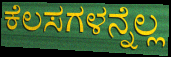
ಕೆಲಸಗಳನ್ನೆಲ್ಲ